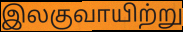
இலகுவாயிற்று